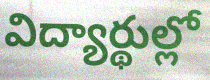
విద్యార్థుల్లో